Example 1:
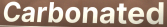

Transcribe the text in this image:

Carbonated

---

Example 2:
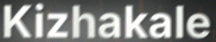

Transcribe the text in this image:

Kizhakale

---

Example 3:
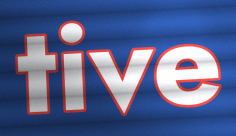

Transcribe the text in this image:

tive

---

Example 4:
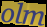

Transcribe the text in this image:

olm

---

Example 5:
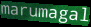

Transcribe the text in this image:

marumagal